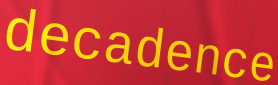
decadence